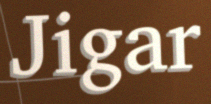
Jigar